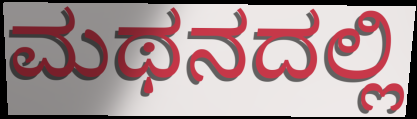
ಮಥನದಲ್ಲಿ